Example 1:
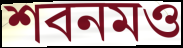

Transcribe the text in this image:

শবনমও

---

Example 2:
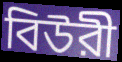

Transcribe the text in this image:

বিউরী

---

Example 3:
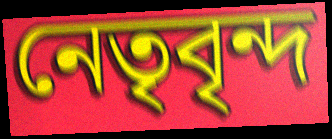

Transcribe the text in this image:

নেতৃবৃন্দ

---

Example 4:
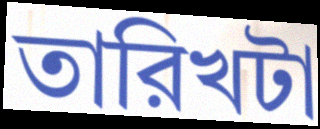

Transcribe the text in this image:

তারিখটা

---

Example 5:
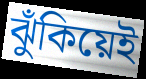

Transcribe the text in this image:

ঝুঁকিয়েই